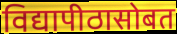
विद्यापीठासोबत